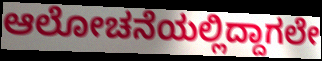
ಆಲೋಚನೆಯಲ್ಲಿದ್ದಾಗಲೇ